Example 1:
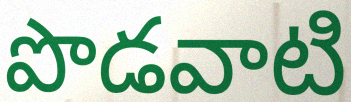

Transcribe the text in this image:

పొడవాటి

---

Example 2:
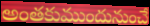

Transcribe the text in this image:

అంతకుముందునుంచే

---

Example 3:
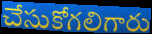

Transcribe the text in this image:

చేసుకోగలిగారు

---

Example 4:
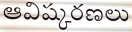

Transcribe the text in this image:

ఆవిష్కరణలు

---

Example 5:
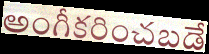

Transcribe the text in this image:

అంగీకరించబడే